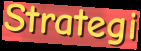
Strategi